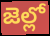
జెల్లో